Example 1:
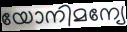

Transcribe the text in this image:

യോനിമന്യേ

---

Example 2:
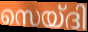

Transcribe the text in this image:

സെയ്ദി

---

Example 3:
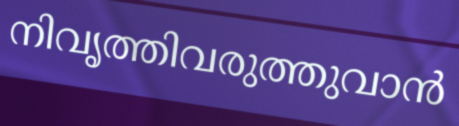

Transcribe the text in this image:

നിവൃത്തിവരുത്തുവാൻ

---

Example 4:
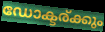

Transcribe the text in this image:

ഡോക്ടര്ക്കും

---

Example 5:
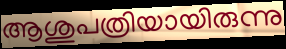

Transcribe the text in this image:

ആശുപത്രിയായിരുന്നു